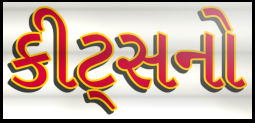
કીટ્સનો